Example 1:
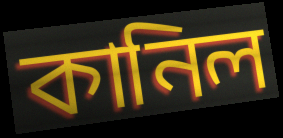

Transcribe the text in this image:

কানিল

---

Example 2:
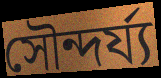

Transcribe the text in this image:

সৌন্দৰ্য্য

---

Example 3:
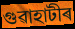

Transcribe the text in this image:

গুৱাহাটীৰ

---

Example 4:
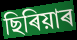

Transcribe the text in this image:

ছিৰিয়াৰ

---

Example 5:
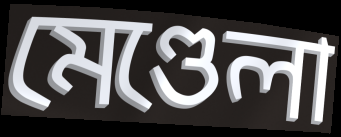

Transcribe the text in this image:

মেণ্ডেলা